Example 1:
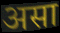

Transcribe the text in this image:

असा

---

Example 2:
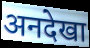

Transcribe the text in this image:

अनदेखा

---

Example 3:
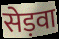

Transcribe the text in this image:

सेड़वा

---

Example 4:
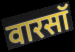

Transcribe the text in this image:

वारसॉ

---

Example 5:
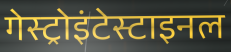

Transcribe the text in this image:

गेस्ट्रोइंटेस्टाइनल